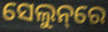
ସେଲୁନ୍‌ରେ